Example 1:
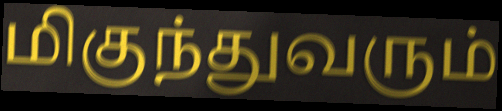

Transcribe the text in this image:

மிகுந்துவரும்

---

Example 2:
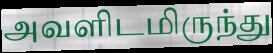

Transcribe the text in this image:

அவளிடமிருந்து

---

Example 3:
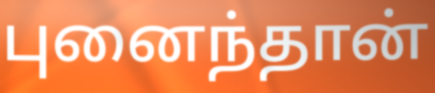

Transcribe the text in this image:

புனைந்தான்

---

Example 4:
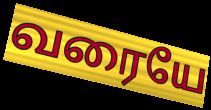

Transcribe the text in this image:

வரையே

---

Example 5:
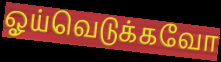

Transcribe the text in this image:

ஓய்வெடுக்கவோ